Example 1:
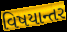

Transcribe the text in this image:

વિષયાન્તર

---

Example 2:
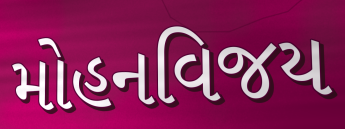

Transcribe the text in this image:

મોહનવિજય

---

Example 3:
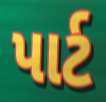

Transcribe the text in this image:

પાર્ટ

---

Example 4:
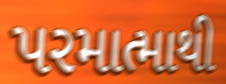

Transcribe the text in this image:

પરમાત્માથી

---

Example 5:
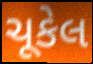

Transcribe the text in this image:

ચૂકેલ